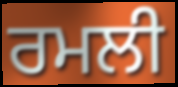
ਰਮਲੀ